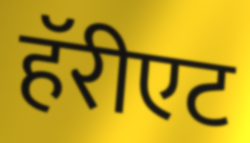
हॅरीएट